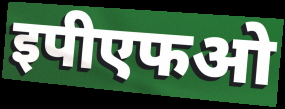
इपीएफओ